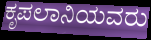
ಕೃಪಲಾನಿಯವರು